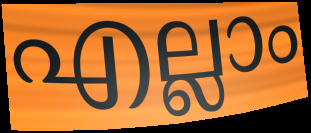
എല്ലാം